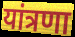
यांत्रणा